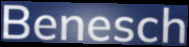
Benesch